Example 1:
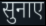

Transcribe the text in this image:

सुनाए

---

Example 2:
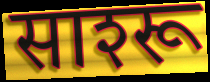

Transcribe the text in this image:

साश्रू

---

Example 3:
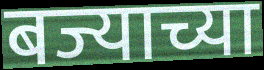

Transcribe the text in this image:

बज्याच्या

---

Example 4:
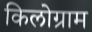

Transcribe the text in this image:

किलोग्राम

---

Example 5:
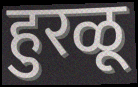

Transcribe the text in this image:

हुरळू